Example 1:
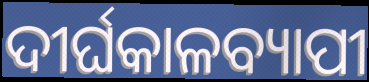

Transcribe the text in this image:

ଦୀର୍ଘକାଳବ୍ୟାପୀ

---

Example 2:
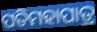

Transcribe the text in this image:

ପତିମହାପାତ୍ର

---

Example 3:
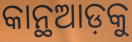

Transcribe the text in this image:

କାନ୍ଥଆଡ଼କୁ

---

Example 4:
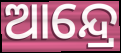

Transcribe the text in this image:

ଆନ୍ଦ୍ରେ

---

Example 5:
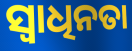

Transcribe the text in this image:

ସ୍ୱାଧିନତା